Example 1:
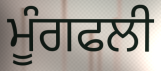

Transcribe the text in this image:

ਮੂੰਗਫਲੀ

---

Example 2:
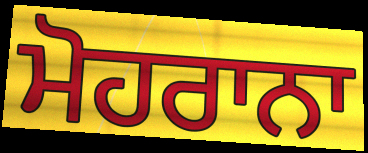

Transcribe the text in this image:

ਮੋਹਰਾਨਾ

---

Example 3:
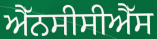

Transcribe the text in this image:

ਐੱਨਸੀਸੀਐੱਸ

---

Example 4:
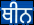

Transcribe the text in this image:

ਥੀਨ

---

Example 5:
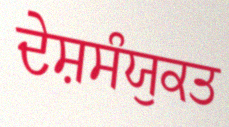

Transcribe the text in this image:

ਦੇਸ਼ਸੰਯੁਕਤ